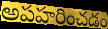
అపహరించడం